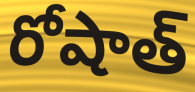
రోషాత్